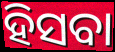
ହିସବା